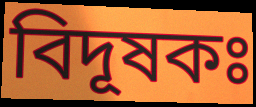
বিদূষকঃ